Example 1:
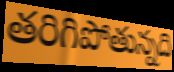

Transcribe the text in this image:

తరిగిపోతున్నది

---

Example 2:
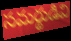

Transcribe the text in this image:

సమర్థుడివి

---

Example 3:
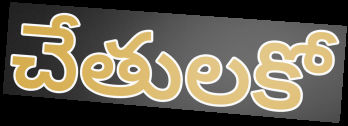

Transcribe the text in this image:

చేతులకో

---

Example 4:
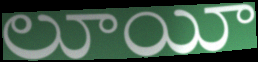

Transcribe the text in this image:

లూయీ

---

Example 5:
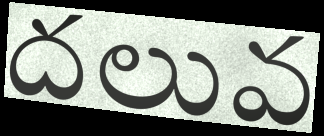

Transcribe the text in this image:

దలువ